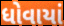
ધોવાયાં